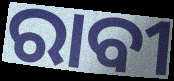
ରାବୀ